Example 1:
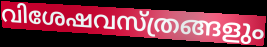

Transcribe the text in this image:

വിശേഷവസ്ത്രങ്ങളും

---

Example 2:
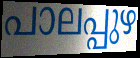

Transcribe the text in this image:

പാലപ്പുഴ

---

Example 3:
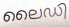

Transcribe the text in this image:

ലൈഡി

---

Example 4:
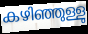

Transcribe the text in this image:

കഴിഞ്ഞുള്ളു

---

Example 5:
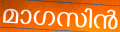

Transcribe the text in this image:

മാഗസിൻ